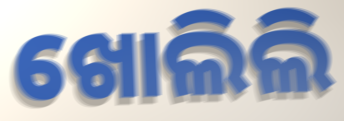
ଖୋଲିଲି